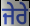
ਜੇਰੇ